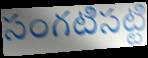
సంగటిసట్టి